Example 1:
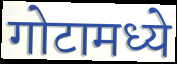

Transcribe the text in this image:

गोटामध्ये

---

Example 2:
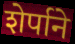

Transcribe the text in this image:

शेर्पाने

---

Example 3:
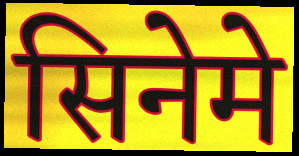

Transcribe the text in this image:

सिनेमे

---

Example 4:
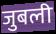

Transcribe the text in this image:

जुबली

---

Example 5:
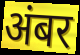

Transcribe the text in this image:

अंबर